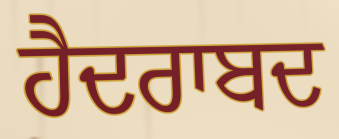
ਹੈਦਰਾਬਦ